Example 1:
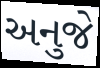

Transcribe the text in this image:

અનુજે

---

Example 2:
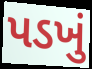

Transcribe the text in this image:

પડખું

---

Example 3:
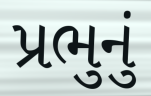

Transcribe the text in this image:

પ્રભુનું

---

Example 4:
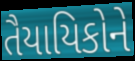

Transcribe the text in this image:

તૈયાયિકોને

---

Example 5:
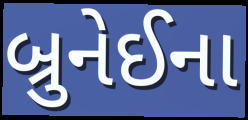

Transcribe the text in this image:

બ્રુનેઈના